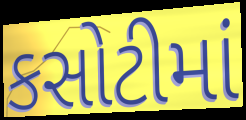
કસોટીમાં